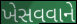
ખેસવવાને